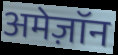
अमेज़ॉन